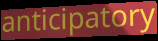
anticipatory